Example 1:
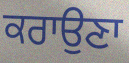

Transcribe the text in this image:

ਕਰਾਉਣਾ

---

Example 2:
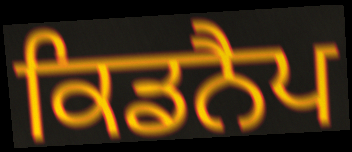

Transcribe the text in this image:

ਕਿਡਨੈਪ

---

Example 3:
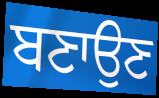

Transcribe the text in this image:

ਬਣਾਉਣ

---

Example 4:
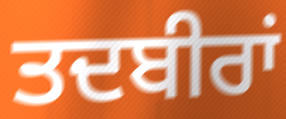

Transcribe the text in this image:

ਤਦਬੀਰਾਂ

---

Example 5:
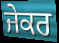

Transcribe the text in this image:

ਜੇਕਰ